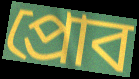
প্রোব